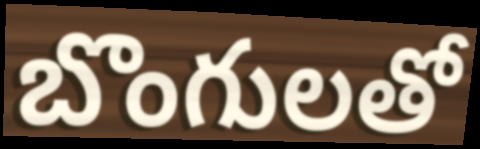
బొంగులతో